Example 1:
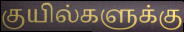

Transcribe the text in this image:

குயில்களுக்கு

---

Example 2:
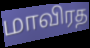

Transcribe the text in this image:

மாவிரத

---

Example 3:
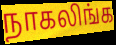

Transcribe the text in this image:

நாகலிங்க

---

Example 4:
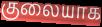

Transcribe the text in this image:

குலையாக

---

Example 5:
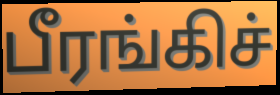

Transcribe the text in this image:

பீரங்கிச்